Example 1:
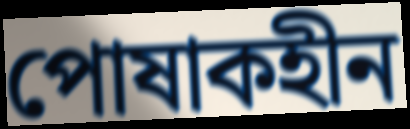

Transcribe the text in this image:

পোষাকহীন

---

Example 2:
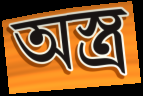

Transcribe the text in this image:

অস্ত্র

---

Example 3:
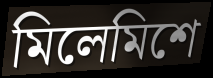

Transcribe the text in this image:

মিলেমিশে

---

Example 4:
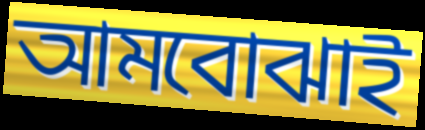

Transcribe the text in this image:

আমবোঝাই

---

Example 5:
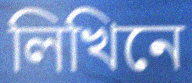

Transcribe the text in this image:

লিখিনে